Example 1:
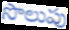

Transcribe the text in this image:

సొలుపు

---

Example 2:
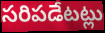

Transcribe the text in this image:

సరిపడేటట్లు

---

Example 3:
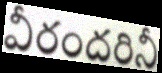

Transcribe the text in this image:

వీరందరినీ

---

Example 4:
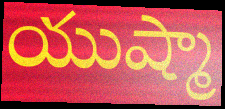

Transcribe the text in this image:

యుష్మా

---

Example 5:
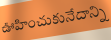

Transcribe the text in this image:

ఊహించుకునేదాన్ని